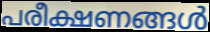
പരീക്ഷണങ്ങൾ